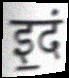
इ॒दं